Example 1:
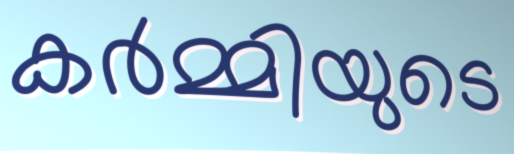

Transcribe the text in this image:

കർമ്മിയുടെ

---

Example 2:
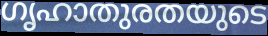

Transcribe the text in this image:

ഗൃഹാതുരതയുടെ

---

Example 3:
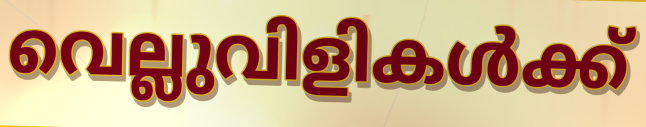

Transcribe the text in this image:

വെല്ലുവിളികൾക്ക്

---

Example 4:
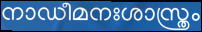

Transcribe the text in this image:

നാഡീമനഃശാസ്ത്രം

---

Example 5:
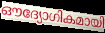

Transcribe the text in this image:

ഔദ്യോഗികമായി